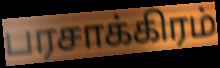
பரசாக்கிரம்